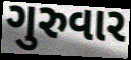
ગુરુવાર